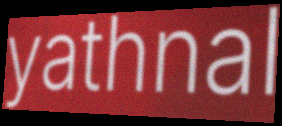
yathnal